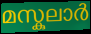
മസ്കുലാർ